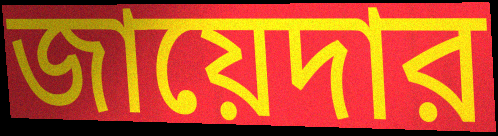
জায়েদার